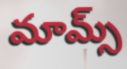
మామ్స్